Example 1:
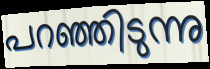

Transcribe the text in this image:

പറഞ്ഞിടുന്നു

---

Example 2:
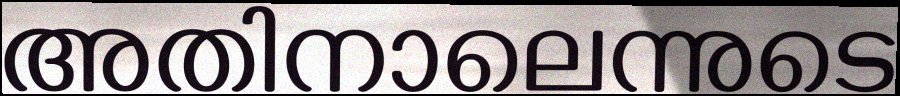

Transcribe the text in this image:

അതിനാലെന്നുടെ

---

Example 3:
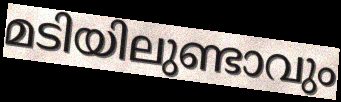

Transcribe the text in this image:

മടിയിലുണ്ടാവും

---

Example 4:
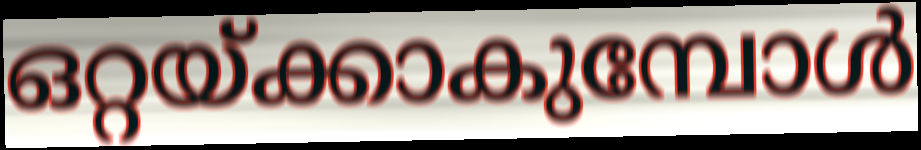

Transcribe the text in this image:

ഒറ്റയ്ക്കാകുമ്പോൾ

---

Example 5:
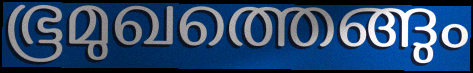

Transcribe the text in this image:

ഭൂമുഖത്തെങ്ങും